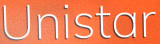
Unistar